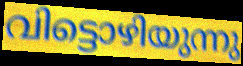
വിട്ടൊഴിയുന്നു